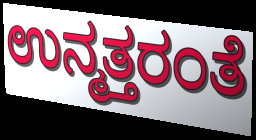
ಉನ್ಮತ್ತರಂತೆ